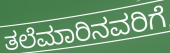
ತಲೆಮಾರಿನವರಿಗೆ